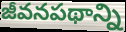
జీవనపథాన్ని